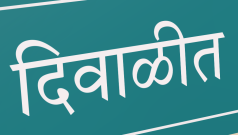
दिवाळीत